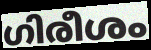
ഗിരീശം